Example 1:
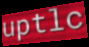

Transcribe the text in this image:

uptlc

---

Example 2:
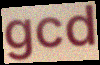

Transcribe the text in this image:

gcd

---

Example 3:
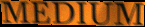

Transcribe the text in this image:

MEDIUM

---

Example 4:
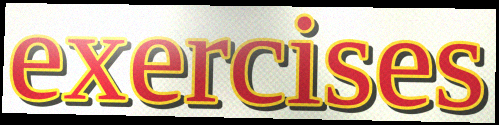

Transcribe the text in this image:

exercises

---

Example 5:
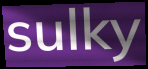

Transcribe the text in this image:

sulky